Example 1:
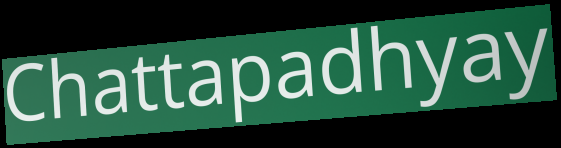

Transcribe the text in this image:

Chattapadhyay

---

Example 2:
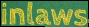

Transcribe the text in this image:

inlaws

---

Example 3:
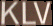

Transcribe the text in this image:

KLV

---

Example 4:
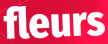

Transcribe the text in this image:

fleurs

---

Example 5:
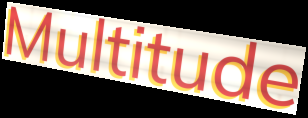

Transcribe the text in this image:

Multitude